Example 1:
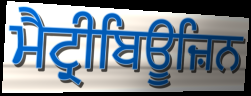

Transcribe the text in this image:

ਮੈਟ੍ਰੀਬਿਊਜ਼ਿਨ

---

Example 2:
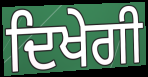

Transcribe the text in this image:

ਦਿਖੇਗੀ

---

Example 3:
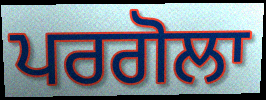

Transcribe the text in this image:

ਪਰਗੋਲਾ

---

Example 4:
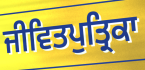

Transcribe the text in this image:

ਜੀਵਿਤਪੁਤ੍ਰਿਕਾ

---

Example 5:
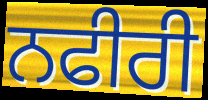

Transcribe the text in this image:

ਨਫੀਰੀ